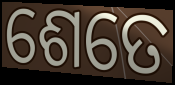
ଶେତେ